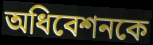
অধিবেশনকে